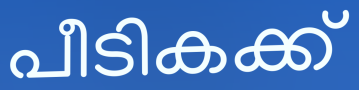
പീടികക്ക്